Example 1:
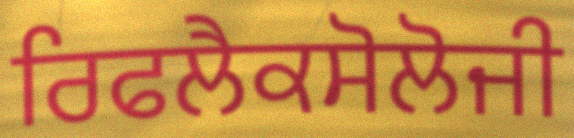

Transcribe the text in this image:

ਰਿਫਲੈਕਸੋਲੋਜੀ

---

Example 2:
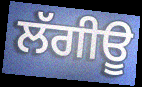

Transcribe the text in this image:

ਲੱਗੀਊ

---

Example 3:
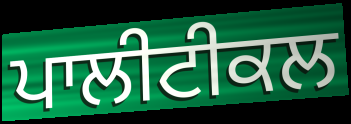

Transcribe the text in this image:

ਪਾਲੀਟੀਕਲ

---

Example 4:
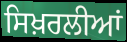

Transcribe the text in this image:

ਸਿਖ਼ਰਲੀਆਂ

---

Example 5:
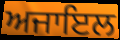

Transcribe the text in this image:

ਅਜਾਇਲ